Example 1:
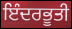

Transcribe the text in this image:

ਇੰਦਰਭੂਤੀ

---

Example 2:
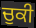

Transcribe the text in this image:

ਚੁਕੀ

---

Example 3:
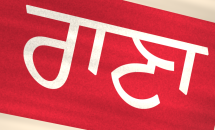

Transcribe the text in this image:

ਰਾਣਾ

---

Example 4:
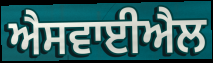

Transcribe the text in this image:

ਐਸਵਾਈਐਲ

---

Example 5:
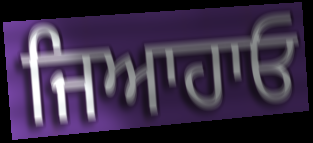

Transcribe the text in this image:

ਜਿਆਹਾਓ